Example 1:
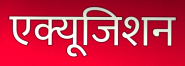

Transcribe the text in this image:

एक्यूजिशन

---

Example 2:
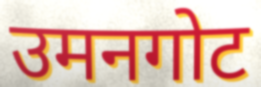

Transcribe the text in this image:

उमनगोट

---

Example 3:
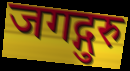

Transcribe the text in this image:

जगद्गुरु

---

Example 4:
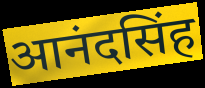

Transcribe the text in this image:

आनंदसिंह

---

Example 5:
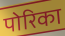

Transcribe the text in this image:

पोरिका